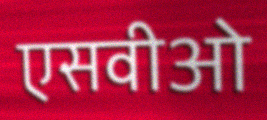
एसवीओ